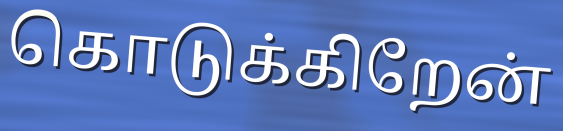
கொடுக்கிறேன்